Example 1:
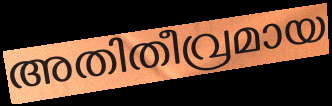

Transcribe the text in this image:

അതിതീവ്രമായ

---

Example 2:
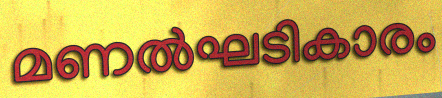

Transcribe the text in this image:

മണൽഘടികാരം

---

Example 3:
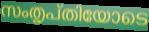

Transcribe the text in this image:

സംതൃപ്‌തിയോടെ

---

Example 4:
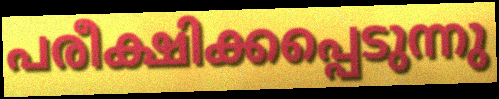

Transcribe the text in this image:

പരീക്ഷിക്കപ്പെടുന്നു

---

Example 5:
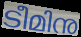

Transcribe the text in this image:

ടീമിനു